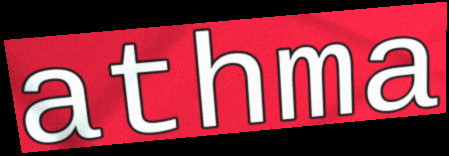
athma